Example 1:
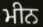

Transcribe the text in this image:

ਮੀਨ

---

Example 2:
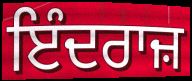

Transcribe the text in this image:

ਇੰਦਰਾਜ਼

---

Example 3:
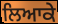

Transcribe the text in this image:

ਲਿਆਕੇ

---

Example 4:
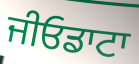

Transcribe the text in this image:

ਜੀਓਡਾਟਾ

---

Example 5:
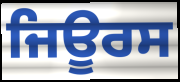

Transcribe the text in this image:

ਜਿਊਰਸ